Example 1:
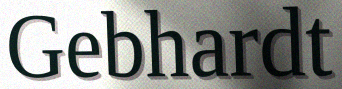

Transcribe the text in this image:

Gebhardt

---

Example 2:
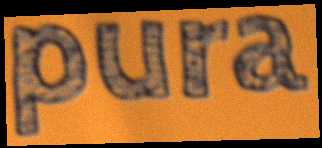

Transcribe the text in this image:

pura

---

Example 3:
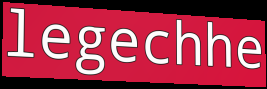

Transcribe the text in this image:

legechhe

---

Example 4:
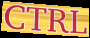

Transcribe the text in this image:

CTRL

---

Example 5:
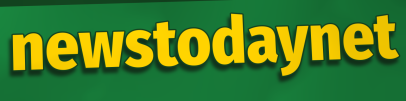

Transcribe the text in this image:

newstodaynet